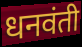
धनवंती